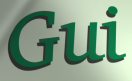
Gui